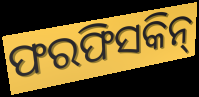
ଫରଫିସକିନ୍